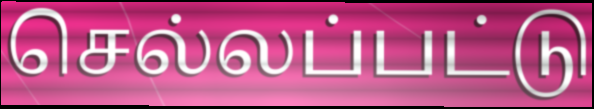
செல்லப்பட்டு